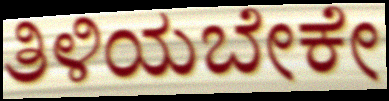
ತಿಳಿಯಬೇಕೇ